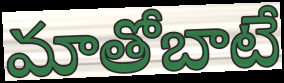
మాతోబాటే